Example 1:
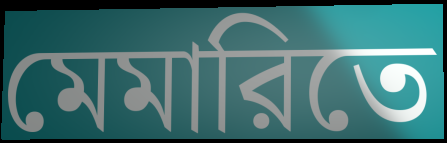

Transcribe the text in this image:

মেমারিতে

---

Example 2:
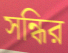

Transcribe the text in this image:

সন্ধির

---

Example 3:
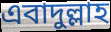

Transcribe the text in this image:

এবাদুল্লাহ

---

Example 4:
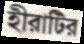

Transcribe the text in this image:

হীরাটির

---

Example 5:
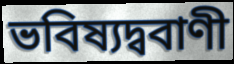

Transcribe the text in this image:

ভবিষ্যদ্ববাণী